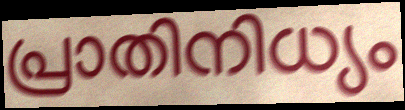
പ്രാതിനിധ്യം